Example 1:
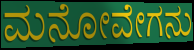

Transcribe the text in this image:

ಮನೋವೇಗನು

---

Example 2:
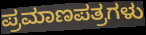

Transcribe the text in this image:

ಪ್ರಮಾಣಪತ್ರಗಳು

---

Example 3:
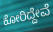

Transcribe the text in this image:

ಕೋರಿದ್ದೇವೆ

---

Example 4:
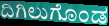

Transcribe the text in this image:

ದಿಗಿಲುಗೊಂಡ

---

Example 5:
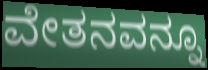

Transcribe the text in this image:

ವೇತನವನ್ನೂ